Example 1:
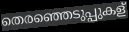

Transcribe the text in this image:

തെരഞ്ഞെടുപ്പുകള്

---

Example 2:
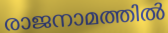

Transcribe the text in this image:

രാജനാമത്തിൽ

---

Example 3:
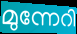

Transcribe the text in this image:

മുന്നേറി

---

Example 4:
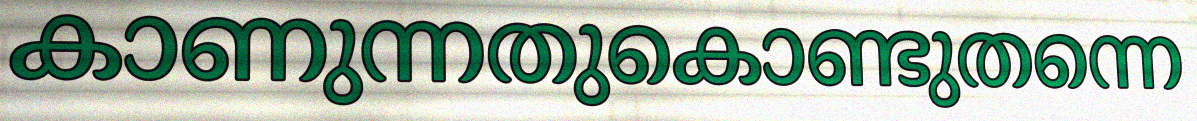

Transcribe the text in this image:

കാണുന്നതുകൊണ്ടുതന്നെ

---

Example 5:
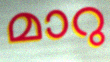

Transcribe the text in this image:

മാറു